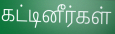
கட்டினீர்கள்